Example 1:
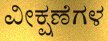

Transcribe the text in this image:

ವೀಕ್ಷಣೆಗಳ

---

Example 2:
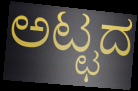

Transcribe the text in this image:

ಅಟ್ಟದ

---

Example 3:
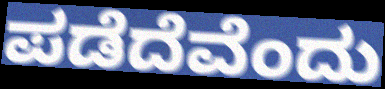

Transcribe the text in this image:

ಪಡೆದೆವೆಂದು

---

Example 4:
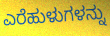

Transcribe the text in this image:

ಎರೆಹುಳುಗಳನ್ನು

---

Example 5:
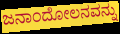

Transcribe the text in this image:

ಜನಾಂದೋಲನವನ್ನು